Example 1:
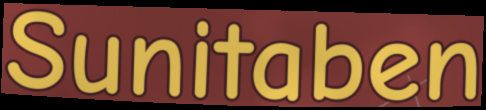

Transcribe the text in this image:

Sunitaben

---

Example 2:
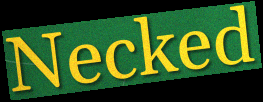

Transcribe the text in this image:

Necked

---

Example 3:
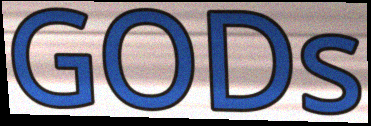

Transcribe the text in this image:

GODs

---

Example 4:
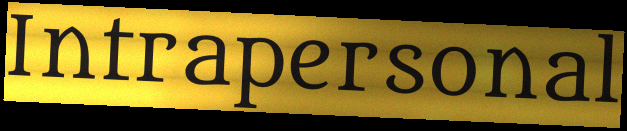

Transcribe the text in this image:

Intrapersonal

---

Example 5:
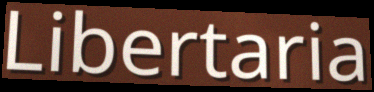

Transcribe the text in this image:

Libertaria